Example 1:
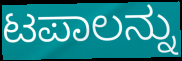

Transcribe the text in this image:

ಟಪಾಲನ್ನು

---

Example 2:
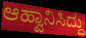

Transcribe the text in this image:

ಆಹ್ವಾನಿಸಿದ್ದು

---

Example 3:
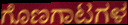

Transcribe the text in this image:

ಗೊಣಗಾಟಗಳ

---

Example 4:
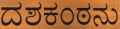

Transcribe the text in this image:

ದಶಕಂಠನು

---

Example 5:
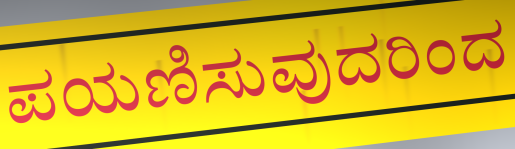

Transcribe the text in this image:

ಪಯಣಿಸುವುದರಿಂದ